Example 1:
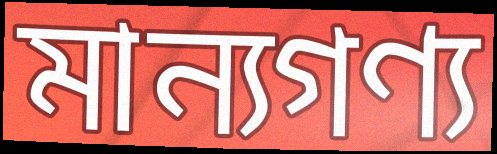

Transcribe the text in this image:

মান্যগণ্য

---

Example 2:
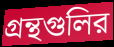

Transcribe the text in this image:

গ্রন্থগুলির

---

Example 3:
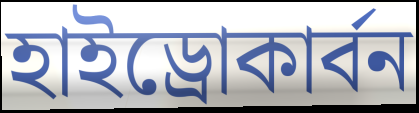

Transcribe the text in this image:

হাইড্রোকার্বন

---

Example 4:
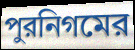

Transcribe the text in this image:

পুরনিগমের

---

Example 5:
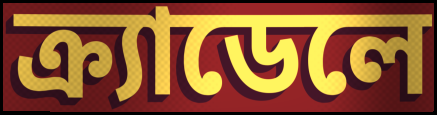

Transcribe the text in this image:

ক্র্যাডেলে